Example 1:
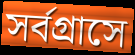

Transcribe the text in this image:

সর্বগ্রাসে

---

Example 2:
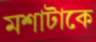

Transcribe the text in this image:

মশাটাকে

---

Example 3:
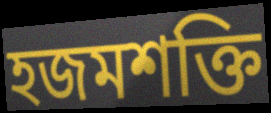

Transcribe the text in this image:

হজমশক্তি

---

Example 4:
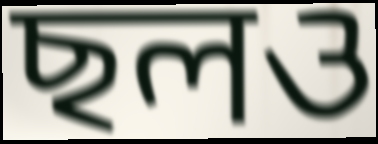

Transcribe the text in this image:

ছলও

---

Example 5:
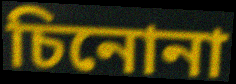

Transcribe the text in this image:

চিনোনা